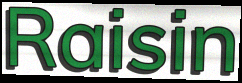
Raisin